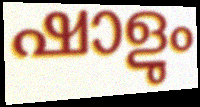
ഷാളും